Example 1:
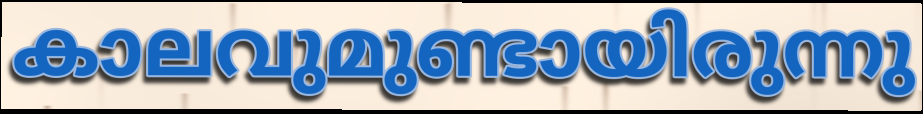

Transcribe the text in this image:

കാലവുമുണ്ടായിരുന്നു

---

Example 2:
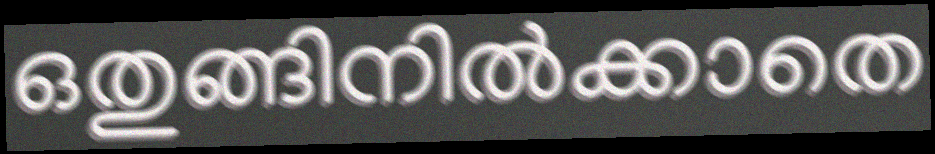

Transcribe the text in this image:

ഒതുങ്ങിനിൽക്കാതെ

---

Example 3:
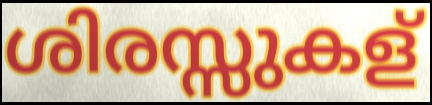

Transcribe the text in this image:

ശിരസ്സുകള്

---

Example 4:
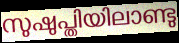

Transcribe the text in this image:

സുഷുപ്തിയിലാണ്ടു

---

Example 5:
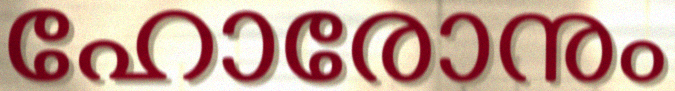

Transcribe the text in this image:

ഹോരോനും